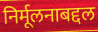
निर्मूलनाबद्दल